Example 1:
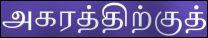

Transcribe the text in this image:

அகரத்திற்குத்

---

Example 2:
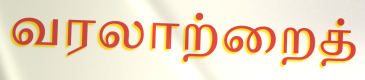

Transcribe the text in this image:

வரலாற்றைத்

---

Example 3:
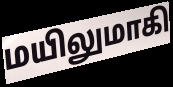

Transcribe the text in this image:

மயிலுமாகி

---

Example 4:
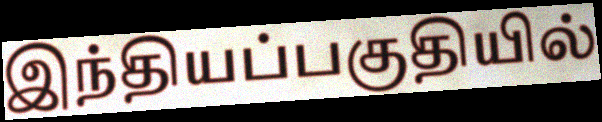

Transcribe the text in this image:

இந்தியப்பகுதியில்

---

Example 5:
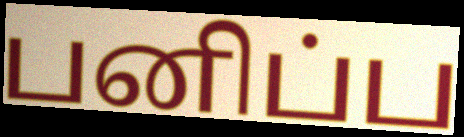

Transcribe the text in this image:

பனிப்ப